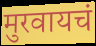
मुरवायचं